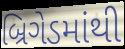
બ્રિગેડમાંથી